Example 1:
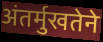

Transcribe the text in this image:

अंतर्मुखतेने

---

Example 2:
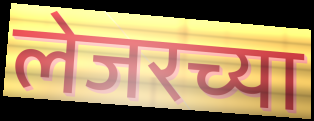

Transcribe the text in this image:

लेजरच्या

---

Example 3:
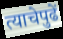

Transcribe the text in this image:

त्याचेपुढें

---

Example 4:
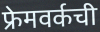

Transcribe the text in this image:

फ्रेमवर्कची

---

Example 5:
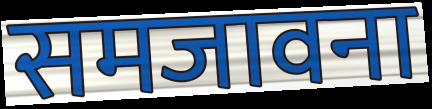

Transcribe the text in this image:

समजावना